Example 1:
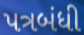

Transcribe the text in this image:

પત્રબંધી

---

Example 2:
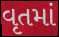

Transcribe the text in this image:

વૃતમાં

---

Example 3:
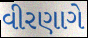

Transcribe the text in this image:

વીરણાગે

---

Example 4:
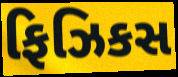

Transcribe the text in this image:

ફિઝિકસ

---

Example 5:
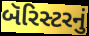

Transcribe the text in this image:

બૅરિસ્ટરનું